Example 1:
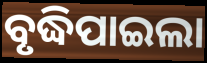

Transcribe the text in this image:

ବୃଦ୍ଧିପାଇଲା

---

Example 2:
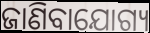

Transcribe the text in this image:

ଜାଣିବାଯୋଗ୍ୟ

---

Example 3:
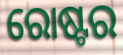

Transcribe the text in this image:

ରୋଷ୍ଟର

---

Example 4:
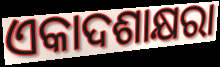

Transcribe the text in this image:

ଏକାଦଶାକ୍ଷରା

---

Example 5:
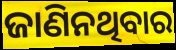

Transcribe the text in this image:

ଜାଣିନଥିବାର